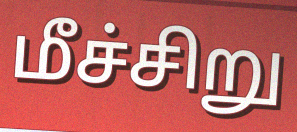
மீச்சிறு